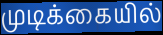
முடிக்கையில்